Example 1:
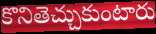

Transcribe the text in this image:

కొనితెచ్చుకుంటారు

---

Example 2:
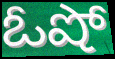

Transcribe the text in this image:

ఓషో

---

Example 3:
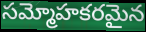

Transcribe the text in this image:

సమ్మోహకరమైన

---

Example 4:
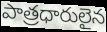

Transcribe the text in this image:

పాత్రధారులైన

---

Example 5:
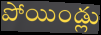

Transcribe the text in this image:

పోయిండ్లు